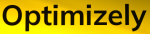
Optimizely